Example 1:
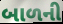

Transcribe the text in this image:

બાળની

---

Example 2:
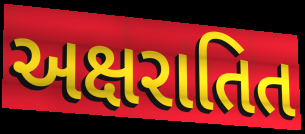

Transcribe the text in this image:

અક્ષરાતિત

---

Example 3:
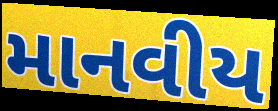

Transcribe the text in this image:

માનવીય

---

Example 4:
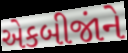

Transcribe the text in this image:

એકબીજાંને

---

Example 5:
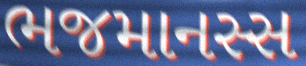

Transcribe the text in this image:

ભજમાનસ્સ